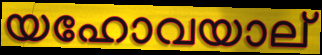
യഹോവയാല്